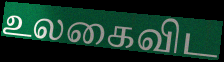
உலகைவிட